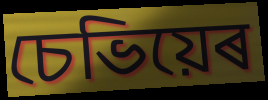
চেভিয়েৰ